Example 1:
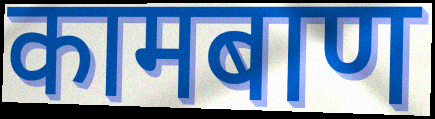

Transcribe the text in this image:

कामबाण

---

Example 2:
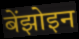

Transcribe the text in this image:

बेंझोइन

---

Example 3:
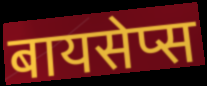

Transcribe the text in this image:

बायसेप्स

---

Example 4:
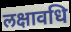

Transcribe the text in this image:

लक्षावधि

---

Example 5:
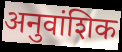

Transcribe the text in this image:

अनुवांशिक